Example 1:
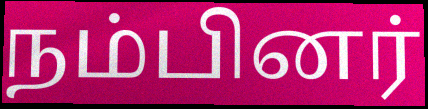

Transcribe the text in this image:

நம்பினர்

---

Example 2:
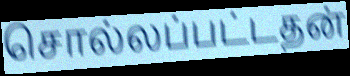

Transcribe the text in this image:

சொல்லப்பட்டதன்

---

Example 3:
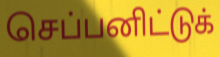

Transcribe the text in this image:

செப்பனிட்டுக்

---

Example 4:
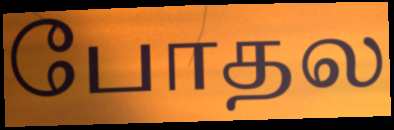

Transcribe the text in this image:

போதல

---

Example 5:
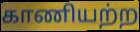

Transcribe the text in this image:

காணியற்ற